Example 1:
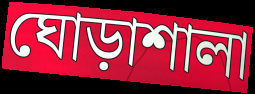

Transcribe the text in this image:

ঘোড়াশালা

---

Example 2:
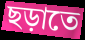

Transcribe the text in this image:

ছড়াতে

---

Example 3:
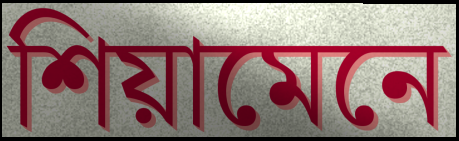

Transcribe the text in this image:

শিয়ামেনে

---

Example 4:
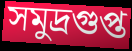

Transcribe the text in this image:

সমুদ্রগুপ্ত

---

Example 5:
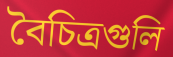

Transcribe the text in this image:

বৈচিত্রগুলি